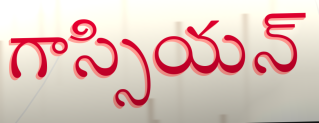
గాస్సియన్